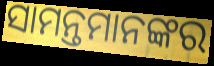
ସାମନ୍ତମାନଙ୍କର